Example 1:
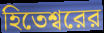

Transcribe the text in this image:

হিতেশ্বরের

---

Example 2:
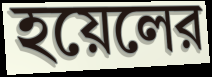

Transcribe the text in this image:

হয়েলের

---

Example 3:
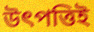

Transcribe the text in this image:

উৎপত্তিই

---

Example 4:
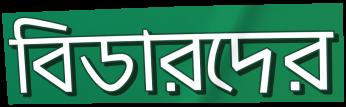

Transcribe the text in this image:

বিডারদের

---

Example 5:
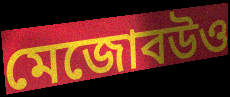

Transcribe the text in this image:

মেজোবউও